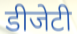
डीजेटी